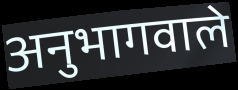
अनुभागवाले